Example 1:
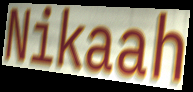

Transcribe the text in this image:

Nikaah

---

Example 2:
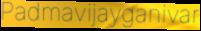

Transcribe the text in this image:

Padmavijayganivar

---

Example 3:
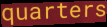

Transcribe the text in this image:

quarters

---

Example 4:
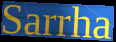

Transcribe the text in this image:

Sarrha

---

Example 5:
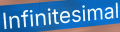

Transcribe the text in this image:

Infinitesimal